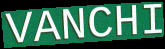
VANCHI